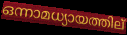
ഒന്നാമധ്യായത്തില്